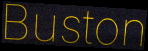
Buston